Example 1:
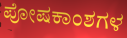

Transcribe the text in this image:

ಪೋಷಕಾಂಶಗಳ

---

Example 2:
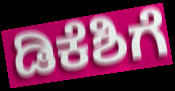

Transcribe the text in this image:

ಡಿಕೆಶಿಗೆ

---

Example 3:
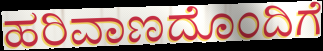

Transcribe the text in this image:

ಹರಿವಾಣದೊಂದಿಗೆ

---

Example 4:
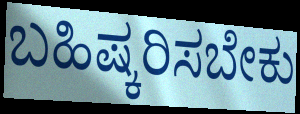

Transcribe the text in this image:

ಬಹಿಷ್ಕರಿಸಬೇಕು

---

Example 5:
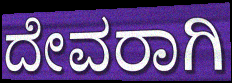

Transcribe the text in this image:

ದೇವರಾಗಿ